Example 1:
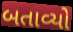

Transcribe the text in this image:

બતાવ્યો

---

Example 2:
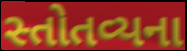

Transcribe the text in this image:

સ્તોતવ્યના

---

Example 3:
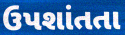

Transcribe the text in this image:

ઉપશાંતતા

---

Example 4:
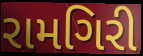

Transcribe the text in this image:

રામગિરી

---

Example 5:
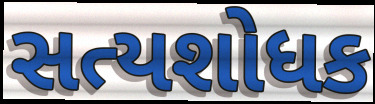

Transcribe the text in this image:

સત્યશોધક